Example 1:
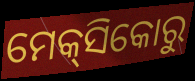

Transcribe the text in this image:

ମେକ୍‌ସିକୋରୁ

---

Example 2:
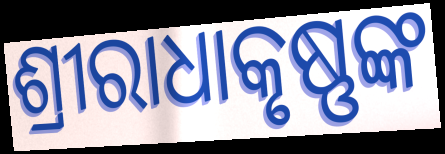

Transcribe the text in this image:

ଶ୍ରୀରାଧାକୃଷ୍ଣଙ୍କ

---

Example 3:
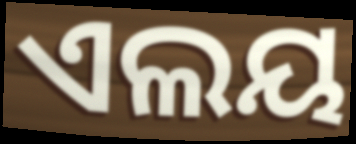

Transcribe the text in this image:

ଏଲୟ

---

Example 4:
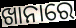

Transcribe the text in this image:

ଖାନାରେ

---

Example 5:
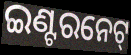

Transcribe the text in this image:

ଇଣ୍ଟରନେଟ୍